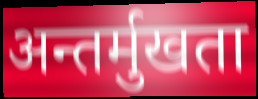
अन्तर्मुखता